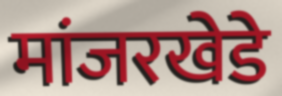
मांजरखेडे